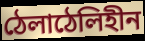
ঠেলাঠেলিহীন